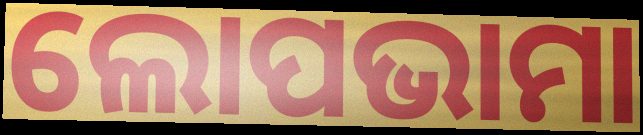
ଲୋପଭାମା